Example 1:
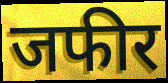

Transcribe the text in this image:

जफीर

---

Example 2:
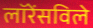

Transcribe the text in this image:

लॉरेंसविले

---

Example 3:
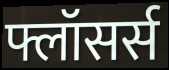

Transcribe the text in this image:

फ्लॉसर्स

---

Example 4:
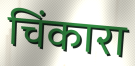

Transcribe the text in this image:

चिंकारा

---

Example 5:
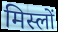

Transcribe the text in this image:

मिस्लों